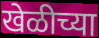
खेळीच्या